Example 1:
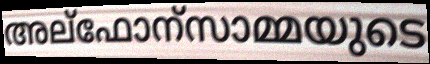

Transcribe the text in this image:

അല്ഫോന്സാമ്മയുടെ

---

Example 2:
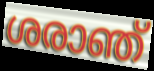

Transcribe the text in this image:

ശരാഞ്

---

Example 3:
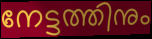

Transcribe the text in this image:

നേട്ടത്തിനും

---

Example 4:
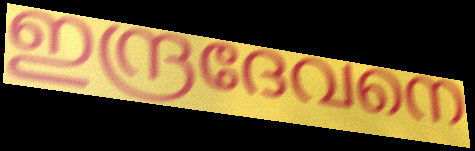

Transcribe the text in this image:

ഇന്ദ്രദേവനെ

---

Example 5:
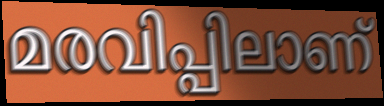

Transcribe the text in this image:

മരവിപ്പിലാണ്